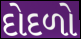
દોદળો